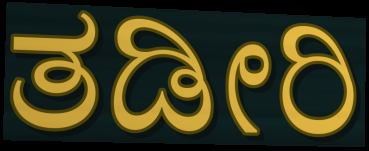
ತಡೀರಿ